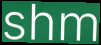
shm